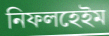
নিফলহেইম